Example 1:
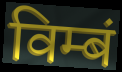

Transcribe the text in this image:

विम्बं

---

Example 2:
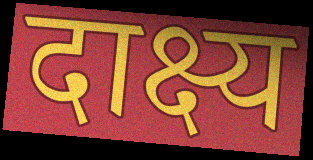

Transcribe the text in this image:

दाक्ष्य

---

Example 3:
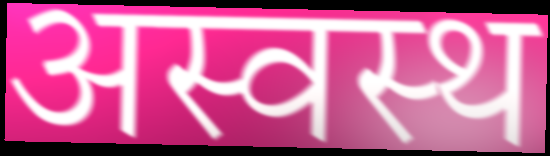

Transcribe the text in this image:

अस्वस्थ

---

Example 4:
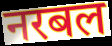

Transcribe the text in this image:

नरबल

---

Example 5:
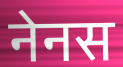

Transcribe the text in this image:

नेनस